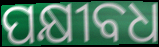
ପକ୍ଷୀବଧ